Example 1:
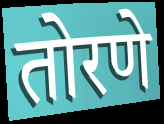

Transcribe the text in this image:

तोरणे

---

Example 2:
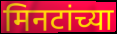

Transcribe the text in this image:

मिनटांच्या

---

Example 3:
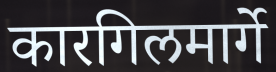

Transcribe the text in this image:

कारगिलमार्गे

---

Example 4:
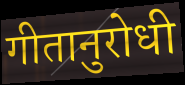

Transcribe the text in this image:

गीतानुरोधी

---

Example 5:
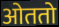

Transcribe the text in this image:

ओततो